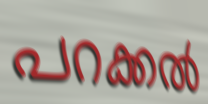
പറക്കൽ